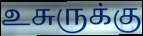
உசுருக்கு